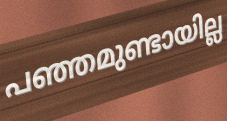
പഞ്ഞമുണ്ടായില്ല